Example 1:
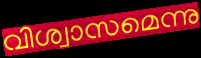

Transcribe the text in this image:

വിശ്വാസമെന്നു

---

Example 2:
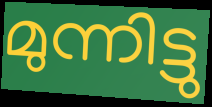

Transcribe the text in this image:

മുന്നിട്ടു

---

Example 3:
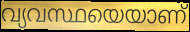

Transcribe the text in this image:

വ്യവസ്ഥയെയാണ്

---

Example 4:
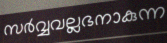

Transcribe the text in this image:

സർവ്വവല്ലഭനാകുന്ന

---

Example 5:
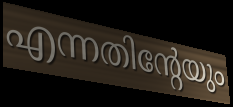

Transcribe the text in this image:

എന്നതിന്റേയും